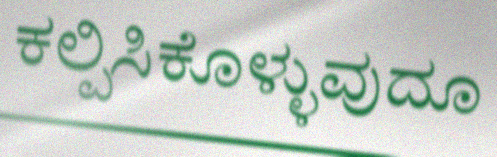
ಕಲ್ಪಿಸಿಕೊಳ್ಳುವುದೂ